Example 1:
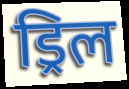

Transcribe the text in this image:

ड्रिल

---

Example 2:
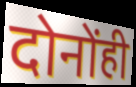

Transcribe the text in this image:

दोनोंही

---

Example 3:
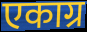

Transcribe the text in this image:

एकाग्र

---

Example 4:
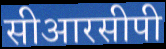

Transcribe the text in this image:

सीआरसीपी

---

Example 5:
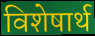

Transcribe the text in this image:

विशेषार्थ